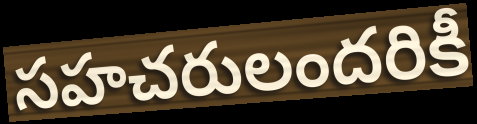
సహచరులందరికీ